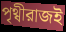
পৃথ্বীরাজই